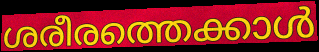
ശരീരത്തെക്കാൾ